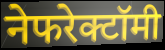
नेफरेक्टॉमी